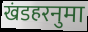
खंडहरनुमा